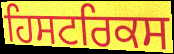
ਹਿਸਟਰਿਕਸ